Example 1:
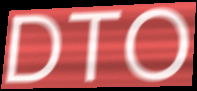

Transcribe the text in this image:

DTO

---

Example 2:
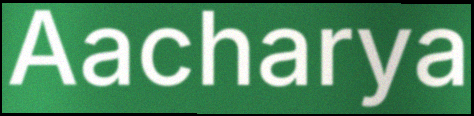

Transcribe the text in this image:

Aacharya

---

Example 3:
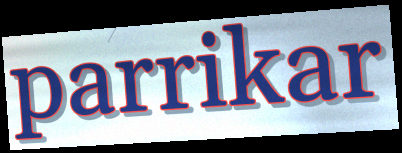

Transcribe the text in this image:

parrikar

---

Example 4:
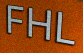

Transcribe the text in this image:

FHL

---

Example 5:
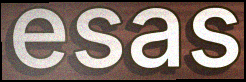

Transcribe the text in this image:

esas